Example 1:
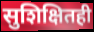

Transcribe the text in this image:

सुशिक्षितही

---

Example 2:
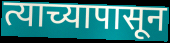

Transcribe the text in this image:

त्याच्यापासून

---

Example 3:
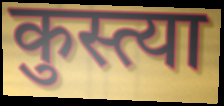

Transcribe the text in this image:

कुस्त्या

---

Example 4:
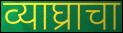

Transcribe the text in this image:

व्याघ्राचा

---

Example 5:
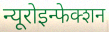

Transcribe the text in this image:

न्यूरोइन्फेक्शन